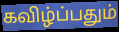
கவிழ்ப்பதும்